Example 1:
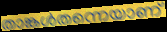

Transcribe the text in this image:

താങ്കൾതന്നെയാണ്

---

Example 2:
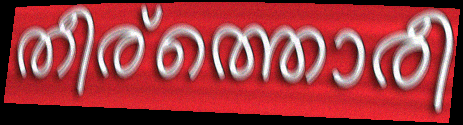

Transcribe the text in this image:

തീര്ത്തൊരീ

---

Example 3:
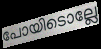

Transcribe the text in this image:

പോയിടൊല്ലേ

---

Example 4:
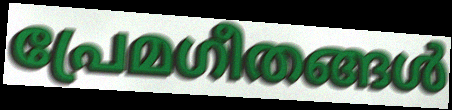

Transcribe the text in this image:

പ്രേമഗീതങ്ങൾ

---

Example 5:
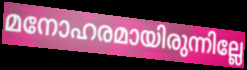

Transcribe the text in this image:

മനോഹരമായിരുന്നില്ലേ